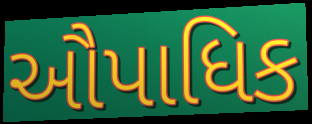
ઔપાધિક